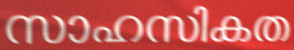
സാഹസികത